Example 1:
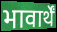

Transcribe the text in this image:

भावार्थें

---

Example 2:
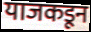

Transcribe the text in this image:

याजकडून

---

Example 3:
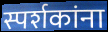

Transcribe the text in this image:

स्पर्शकांना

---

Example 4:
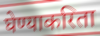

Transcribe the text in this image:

घेण्याकरिता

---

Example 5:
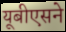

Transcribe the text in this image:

यूबीएसने